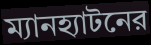
ম্যানহ্যাটনের